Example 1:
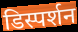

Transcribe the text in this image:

डिस्पर्शन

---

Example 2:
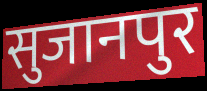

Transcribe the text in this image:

सुजानपुर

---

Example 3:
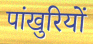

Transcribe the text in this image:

पांखुरियों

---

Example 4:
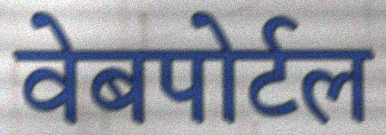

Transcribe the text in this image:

वेबपोर्टल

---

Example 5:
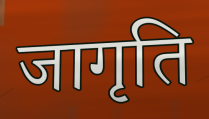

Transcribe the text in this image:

जागृति